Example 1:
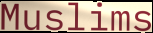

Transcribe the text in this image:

Muslims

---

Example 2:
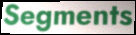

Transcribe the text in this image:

Segments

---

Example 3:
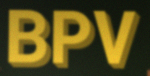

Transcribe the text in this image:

BPV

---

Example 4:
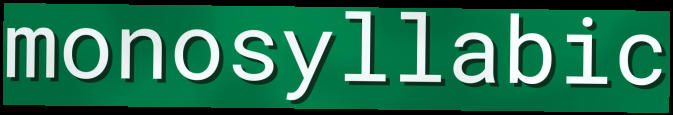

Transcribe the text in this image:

monosyllabic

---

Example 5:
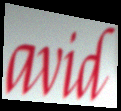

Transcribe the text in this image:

avid